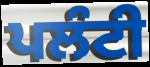
ਪਲੰਟੀ